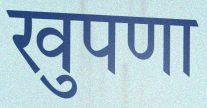
खुपणा